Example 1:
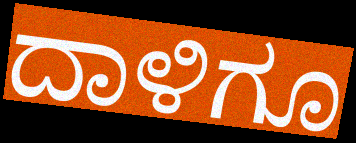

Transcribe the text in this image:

ದಾಳಿಗೂ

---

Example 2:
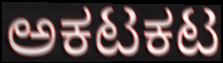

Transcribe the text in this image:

ಅಕಟಕಟ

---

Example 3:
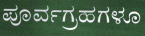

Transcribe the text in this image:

ಪೂರ್ವಗ್ರಹಗಳೂ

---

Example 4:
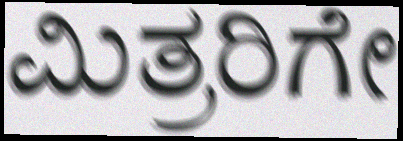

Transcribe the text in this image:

ಮಿತ್ರರಿಗೇ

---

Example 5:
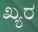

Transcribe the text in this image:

ಖ್ಯರ